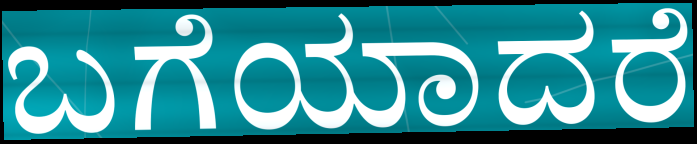
ಬಗೆಯಾದರೆ